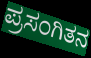
ಪ್ರಸಂಗಿತನ